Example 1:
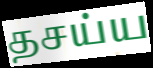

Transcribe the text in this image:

தசய்ய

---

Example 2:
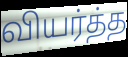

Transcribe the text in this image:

வியர்த்த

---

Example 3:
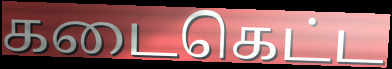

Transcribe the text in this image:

கடைகெட்ட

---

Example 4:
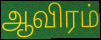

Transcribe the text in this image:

ஆவிரம்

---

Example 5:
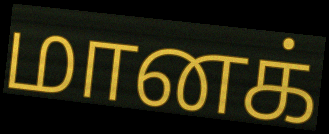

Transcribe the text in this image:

மானக்